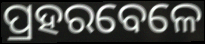
ପ୍ରହରବେଳେ